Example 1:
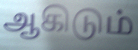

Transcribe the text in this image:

ஆகிடும்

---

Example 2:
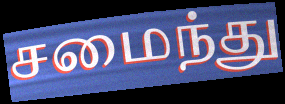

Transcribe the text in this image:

சமைந்து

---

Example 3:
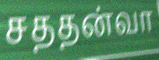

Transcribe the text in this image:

சததன்வா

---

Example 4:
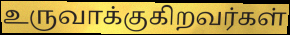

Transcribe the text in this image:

உருவாக்குகிறவர்கள்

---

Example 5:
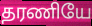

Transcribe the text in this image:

தரணியே